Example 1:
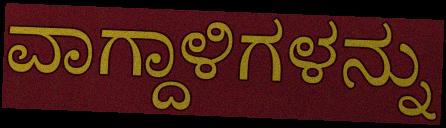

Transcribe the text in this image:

ವಾಗ್ದಾಳಿಗಳನ್ನು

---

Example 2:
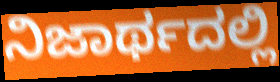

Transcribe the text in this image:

ನಿಜಾರ್ಥದಲ್ಲಿ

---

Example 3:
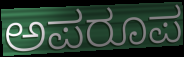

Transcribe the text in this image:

ಅಪರೂಪ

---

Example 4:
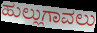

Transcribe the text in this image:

ಹುಲ್ಲುಗಾವಲು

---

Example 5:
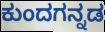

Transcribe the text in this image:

ಕುಂದಗನ್ನಡ